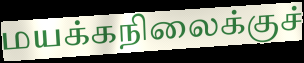
மயக்கநிலைக்குச்